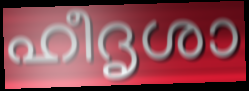
ഹീദൃശാ